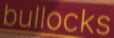
bullocks